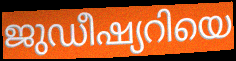
ജുഡീഷ്യറിയെ